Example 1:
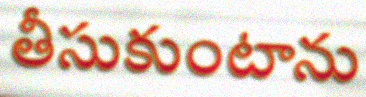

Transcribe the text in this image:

తీసుకుంటాను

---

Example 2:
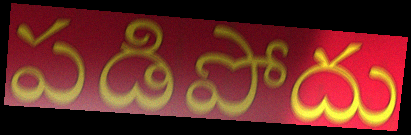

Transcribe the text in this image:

పడిపోదు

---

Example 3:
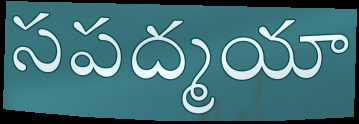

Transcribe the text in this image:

సపద్మయా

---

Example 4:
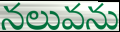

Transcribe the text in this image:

నలువను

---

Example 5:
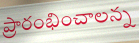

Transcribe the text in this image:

ప్రారంభించాలన్న